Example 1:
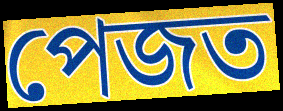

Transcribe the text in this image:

পেজত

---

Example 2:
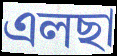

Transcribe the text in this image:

এলছা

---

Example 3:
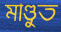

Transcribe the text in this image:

মাণ্ডুত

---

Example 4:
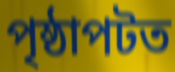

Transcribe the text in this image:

পৃষ্ঠাপটত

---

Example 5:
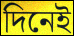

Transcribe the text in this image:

দিনেই